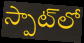
స్పాట్‌లో